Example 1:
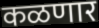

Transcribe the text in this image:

कळणार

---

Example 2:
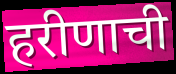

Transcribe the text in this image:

हरीणाची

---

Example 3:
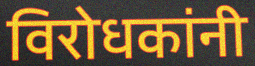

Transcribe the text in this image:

विरोधकांनी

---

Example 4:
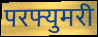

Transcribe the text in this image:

परफ्युमरी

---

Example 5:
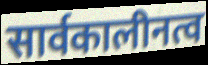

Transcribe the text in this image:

सार्वकालीनत्व